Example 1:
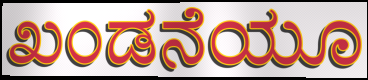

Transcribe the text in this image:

ಖಂಡನೆಯೂ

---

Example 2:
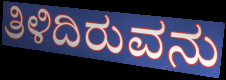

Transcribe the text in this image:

ತಿಳಿದಿರುವನು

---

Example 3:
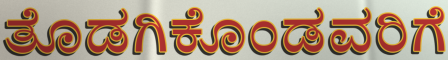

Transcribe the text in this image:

ತೊಡಗಿಕೊಂಡವರಿಗೆ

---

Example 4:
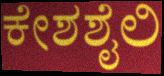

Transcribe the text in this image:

ಕೇಶಶೈಲಿ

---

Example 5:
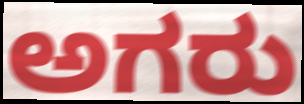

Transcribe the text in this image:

ಅಗರು